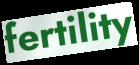
fertility